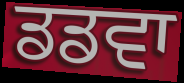
ਡਡਵਾ